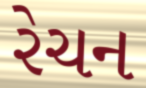
રેચન